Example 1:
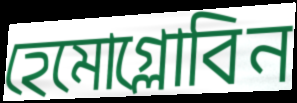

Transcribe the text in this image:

হেমোগ্লোবিন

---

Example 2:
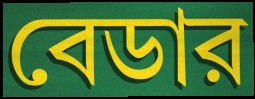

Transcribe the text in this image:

বেডার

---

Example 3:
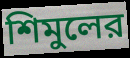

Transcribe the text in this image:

শিমুলের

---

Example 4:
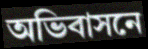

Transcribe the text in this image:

অভিবাসনে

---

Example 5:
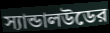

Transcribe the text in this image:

স্যান্ডালউডের